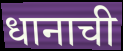
धानाची